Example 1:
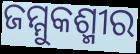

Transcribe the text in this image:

ଜମ୍ମୁକଶ୍ମୀର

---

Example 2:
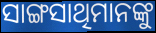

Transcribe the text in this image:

ସାଙ୍ଗସାଥିମାନଙ୍କୁ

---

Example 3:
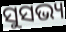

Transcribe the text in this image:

ସୁସଭ୍ୟ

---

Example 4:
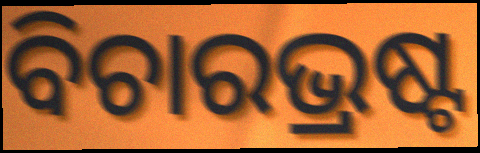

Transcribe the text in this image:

ବିଚାରଭ୍ରଷ୍ଟ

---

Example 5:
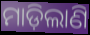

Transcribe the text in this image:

ମାଡ଼ିଲାଣି